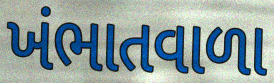
ખંભાતવાળા